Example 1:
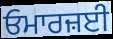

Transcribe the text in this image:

ਓਮਾਰਜ਼ਈ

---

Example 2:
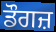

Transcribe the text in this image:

ਡੌਗਜ਼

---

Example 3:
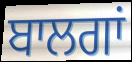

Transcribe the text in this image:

ਬਾਲਗਾਂ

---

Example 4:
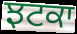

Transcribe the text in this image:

ਝਟਕਾ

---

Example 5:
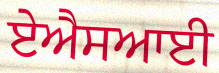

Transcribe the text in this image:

ਏਐਸਆਈ